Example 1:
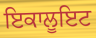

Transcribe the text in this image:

ਇਕਾਲੂਇਟ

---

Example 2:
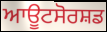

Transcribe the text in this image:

ਆਊਟਸੋਰਸ਼ਡ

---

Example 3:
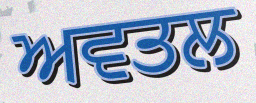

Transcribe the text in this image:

ਅਵਤਲ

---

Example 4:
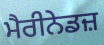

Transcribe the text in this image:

ਮੈਰੀਨੇਡਜ਼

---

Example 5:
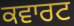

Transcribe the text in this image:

ਕਵਾਰਟ